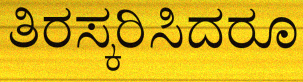
ತಿರಸ್ಕರಿಸಿದರೂ